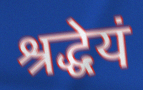
श्रद्धेयं